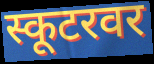
स्कूटरवर